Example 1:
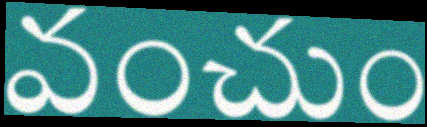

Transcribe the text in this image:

వంచుం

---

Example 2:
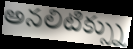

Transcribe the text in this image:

అనలిటిక్స్ను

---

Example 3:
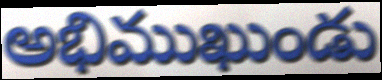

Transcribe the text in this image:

అభిముఖుండు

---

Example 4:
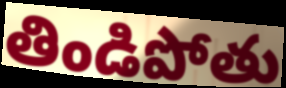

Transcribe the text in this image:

తిండిపోతు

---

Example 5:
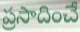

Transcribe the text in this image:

ప్రసాదించే